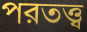
পরতত্ত্ব